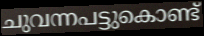
ചുവന്നപട്ടുകൊണ്ട്